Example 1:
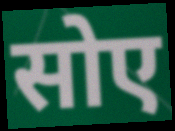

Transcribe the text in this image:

सोए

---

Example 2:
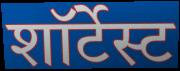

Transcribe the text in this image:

शॉर्टेस्ट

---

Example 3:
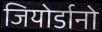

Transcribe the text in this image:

जियोर्डानो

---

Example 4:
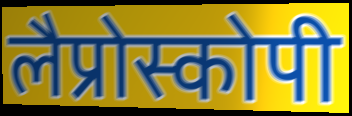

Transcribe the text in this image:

लैप्रोस्कोपी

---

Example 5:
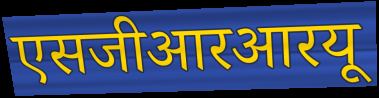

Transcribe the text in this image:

एसजीआरआरयू